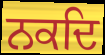
ਨਕਦਿ